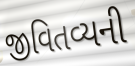
જીવિતવ્યની